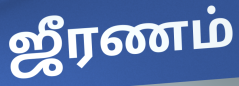
ஜீரணம்